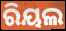
ରିୟଲ